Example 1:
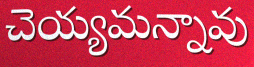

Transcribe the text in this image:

చెయ్యమన్నావు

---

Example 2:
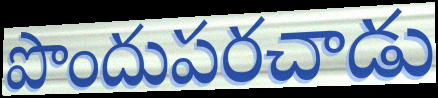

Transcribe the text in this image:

పొందుపరచాడు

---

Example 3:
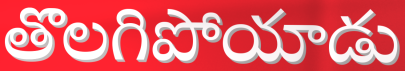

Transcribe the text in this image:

తొలగిపోయాడు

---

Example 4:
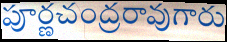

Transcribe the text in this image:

పూర్ణచంద్రరావుగారు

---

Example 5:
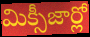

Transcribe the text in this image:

మిక్సీజార్లో